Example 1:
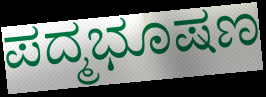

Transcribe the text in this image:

ಪದ್ಮಭೂಷಣ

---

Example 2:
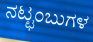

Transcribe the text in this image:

ನಟ್ಟಂಬುಗಳ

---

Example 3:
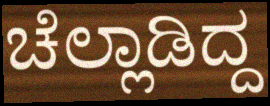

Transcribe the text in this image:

ಚೆಲ್ಲಾಡಿದ್ದ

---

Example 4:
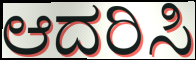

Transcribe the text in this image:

ಆದರಿಸಿ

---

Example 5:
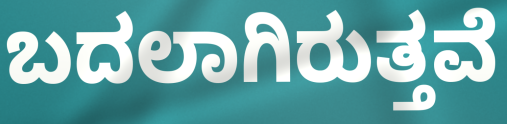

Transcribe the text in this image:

ಬದಲಾಗಿರುತ್ತವೆ